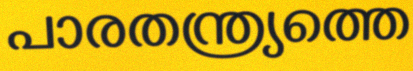
പാരതന്ത്ര്യത്തെ